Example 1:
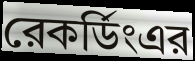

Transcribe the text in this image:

রেকর্ডিংএর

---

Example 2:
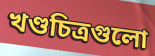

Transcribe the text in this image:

খণ্ডচিত্রগুলো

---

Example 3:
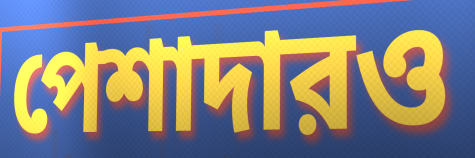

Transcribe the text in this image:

পেশাদারও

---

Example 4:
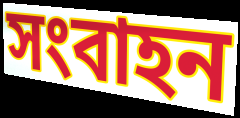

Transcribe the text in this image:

সংবাহন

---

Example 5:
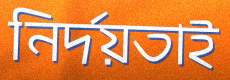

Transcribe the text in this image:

নির্দয়তাই